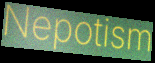
Nepotism